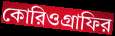
কোরিওগ্রাফির